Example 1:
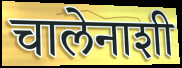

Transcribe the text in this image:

चालेनाशी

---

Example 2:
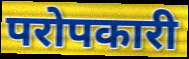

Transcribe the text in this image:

परोपकारी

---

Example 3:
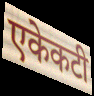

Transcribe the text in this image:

एकेकटी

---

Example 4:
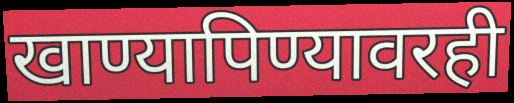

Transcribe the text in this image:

खाण्यापिण्यावरही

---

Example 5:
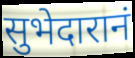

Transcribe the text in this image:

सुभेदारानं